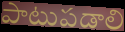
పాటుపడాలి